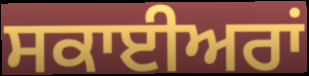
ਸਕਾਈਅਰਾਂ